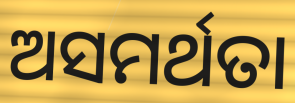
ଅସମର୍ଥତା